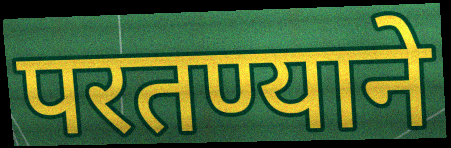
परतण्याने